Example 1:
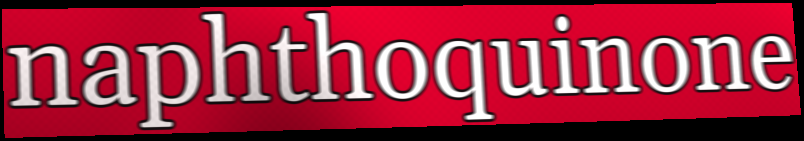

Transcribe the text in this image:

naphthoquinone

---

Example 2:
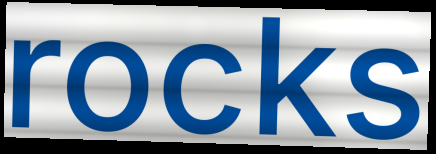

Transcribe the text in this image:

rocks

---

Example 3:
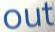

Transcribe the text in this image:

out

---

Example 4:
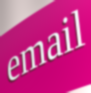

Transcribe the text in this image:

email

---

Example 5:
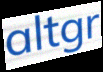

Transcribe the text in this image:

altgr